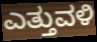
ಎತ್ತುವಳಿ